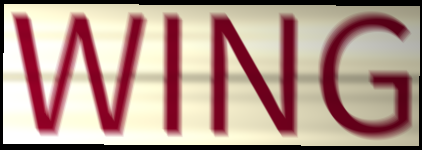
WING